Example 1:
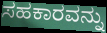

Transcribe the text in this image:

ಸಹಕಾರವನ್ನು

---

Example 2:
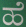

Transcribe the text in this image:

ಹೆ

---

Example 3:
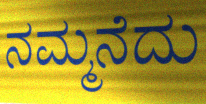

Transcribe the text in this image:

ನಮ್ಮನೆದು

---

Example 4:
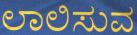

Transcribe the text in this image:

ಲಾಲಿಸುವ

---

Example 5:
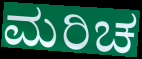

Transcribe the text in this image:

ಮರಿಚ